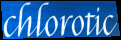
chlorotic